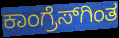
ಕಾಂಗ್ರೆಸ್‌ಗಿಂತ